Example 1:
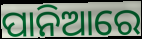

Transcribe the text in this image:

ପାନିଆରେ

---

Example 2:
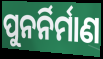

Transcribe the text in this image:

ପୁନର୍ନିର୍ମାଣ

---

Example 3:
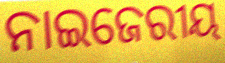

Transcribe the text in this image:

ନାଇଜେରୀୟ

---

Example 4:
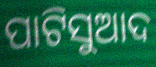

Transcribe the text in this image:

ପାଟିସୁଆଦ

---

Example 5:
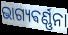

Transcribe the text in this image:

ଭାଗ୍ୟଵର୍ଣ୍ଣନା